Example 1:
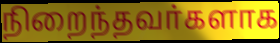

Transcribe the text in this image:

நிறைந்தவர்களாக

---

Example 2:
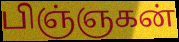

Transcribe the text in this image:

பிஞ்ஞகன்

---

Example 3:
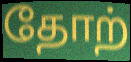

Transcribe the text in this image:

தோற்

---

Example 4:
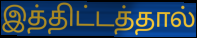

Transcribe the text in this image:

இத்திட்டத்தால்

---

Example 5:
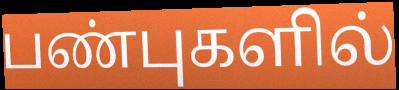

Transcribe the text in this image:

பண்புகளில்